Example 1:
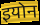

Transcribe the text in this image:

इयोन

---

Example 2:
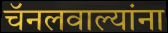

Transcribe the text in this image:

चॅनलवाल्यांना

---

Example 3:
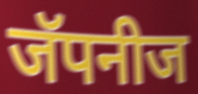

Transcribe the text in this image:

जॅपनीज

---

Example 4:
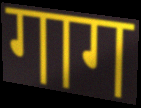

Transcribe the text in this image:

गाग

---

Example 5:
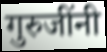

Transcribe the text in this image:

गुरुजींनी